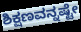
ಶಿಕ್ಷಣವನ್ನಷ್ಟೇ